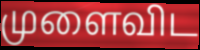
முளைவிட